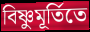
বিষ্ণুমূর্তিতে